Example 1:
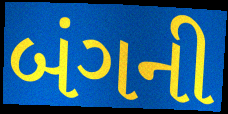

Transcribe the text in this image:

બંગની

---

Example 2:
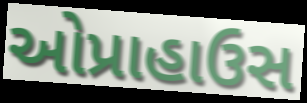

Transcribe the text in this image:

ઓપ્રાહાઉસ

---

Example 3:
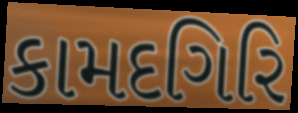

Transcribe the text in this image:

કામદગિરિ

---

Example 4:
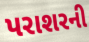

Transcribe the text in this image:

પરાશરની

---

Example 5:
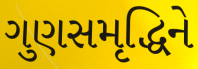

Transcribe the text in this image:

ગુણસમૃદ્ધિને